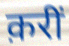
क़रीं